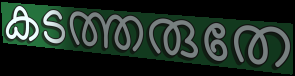
കടത്തരുതേ